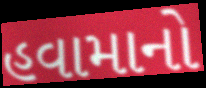
હવામાનો